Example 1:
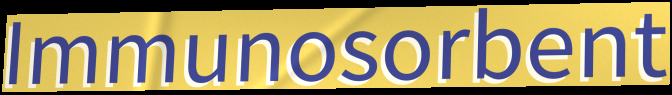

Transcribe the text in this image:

Immunosorbent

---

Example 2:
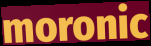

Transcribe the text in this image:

moronic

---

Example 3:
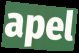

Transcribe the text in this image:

apel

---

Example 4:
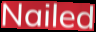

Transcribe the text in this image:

Nailed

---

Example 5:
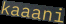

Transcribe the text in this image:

kaaani